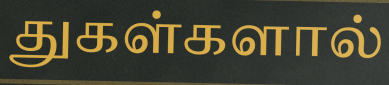
துகள்களால்